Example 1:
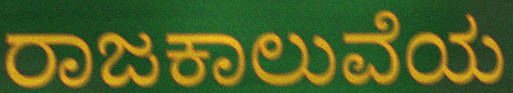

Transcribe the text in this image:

ರಾಜಕಾಲುವೆಯ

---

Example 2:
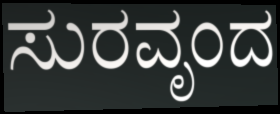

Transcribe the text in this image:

ಸುರವೃಂದ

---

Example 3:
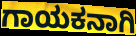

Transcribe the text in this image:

ಗಾಯಕನಾಗಿ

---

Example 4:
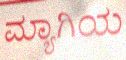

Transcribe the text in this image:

ಮ್ಯಾಗಿಯ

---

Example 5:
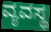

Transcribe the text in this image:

ವ್ಯವಸ್ಥ